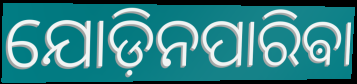
ଯୋଡ଼ିନପାରିଵା